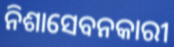
ନିଶାସେବନକାରୀ